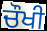
ਚੌਖੀ